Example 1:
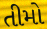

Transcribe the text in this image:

તીમો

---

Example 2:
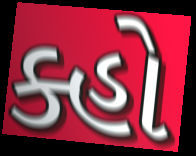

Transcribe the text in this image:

ક્હો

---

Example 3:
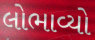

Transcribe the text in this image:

લોભાવ્યો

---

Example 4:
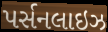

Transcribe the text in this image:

પર્સનલાઇઝ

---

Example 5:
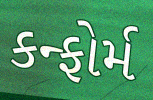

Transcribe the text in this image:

કન્ફોર્મ